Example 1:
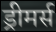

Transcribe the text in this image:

ड्रीमर्स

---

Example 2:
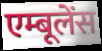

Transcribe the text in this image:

एम्बूलेंस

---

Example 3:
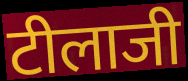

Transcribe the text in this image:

टीलाजी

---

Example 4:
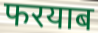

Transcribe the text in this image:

फरयाब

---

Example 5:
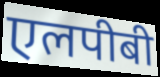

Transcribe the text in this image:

एलपीबी